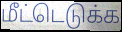
மீட்டெடுக்க